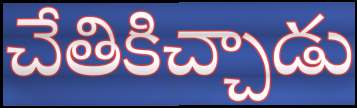
చేతికిచ్చాడు